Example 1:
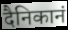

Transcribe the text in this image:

दैनिकानं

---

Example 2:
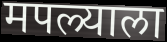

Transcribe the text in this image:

मपल्याला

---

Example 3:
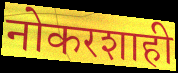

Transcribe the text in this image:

नोकरशाही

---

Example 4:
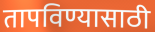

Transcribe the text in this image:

तापविण्यासाठी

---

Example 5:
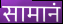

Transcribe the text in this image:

सामानं